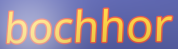
bochhor